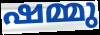
ഷമ്മു